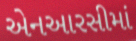
એનઆરસીમાં